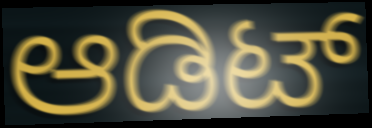
ಆಡಿಟ್